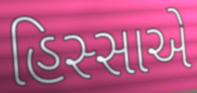
હિસ્સાએ